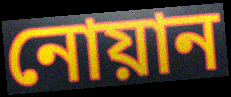
নোয়ান